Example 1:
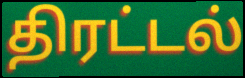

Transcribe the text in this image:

திரட்டல்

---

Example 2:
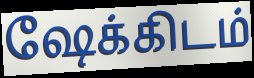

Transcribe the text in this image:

ஷேக்கிடம்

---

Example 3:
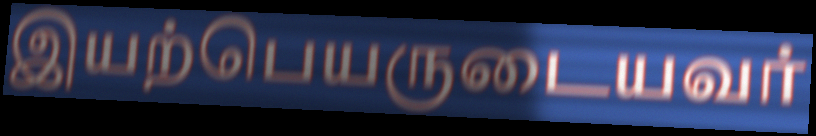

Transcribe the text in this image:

இயற்பெயருடையவர்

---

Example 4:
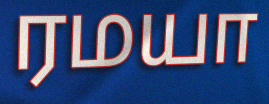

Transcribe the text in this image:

ரமயா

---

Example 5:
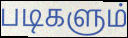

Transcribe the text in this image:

படிகளும்